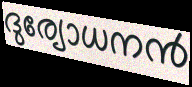
ദുര്യോധനൻ